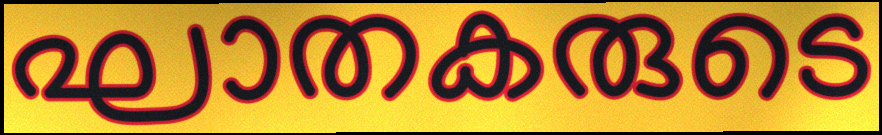
ഘാതകരുടെ